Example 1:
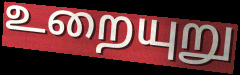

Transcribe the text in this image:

உறையுறு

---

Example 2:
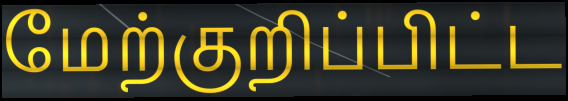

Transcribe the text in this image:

மேற்குறிப்பிட்ட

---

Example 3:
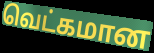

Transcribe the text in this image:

வெட்கமான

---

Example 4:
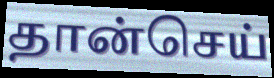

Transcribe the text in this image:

தான்செய்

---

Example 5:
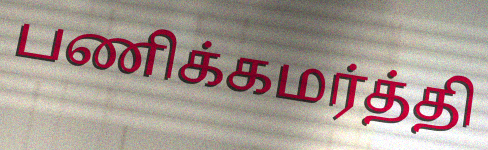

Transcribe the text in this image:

பணிக்கமர்த்தி